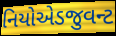
નિયોએડજુવન્ટ